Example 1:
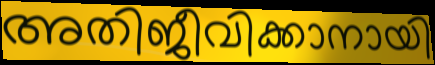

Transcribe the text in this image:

അതിജീവിക്കാനായി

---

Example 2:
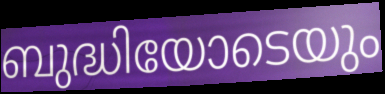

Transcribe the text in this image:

ബുദ്ധിയോടെയും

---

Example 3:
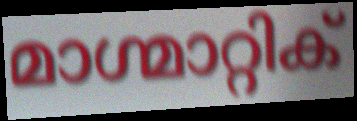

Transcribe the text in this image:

മാഗ്മാറ്റിക്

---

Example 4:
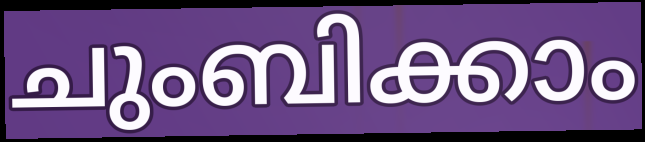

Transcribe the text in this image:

ചുംബിക്കാം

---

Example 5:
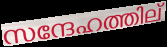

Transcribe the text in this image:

സന്ദേഹത്തില്